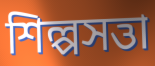
শিল্পসত্তা